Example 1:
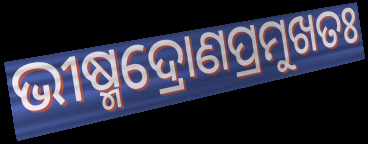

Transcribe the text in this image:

ଭୀଷ୍ମଦ୍ରୋଣପ୍ରମୁଖତଃ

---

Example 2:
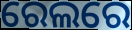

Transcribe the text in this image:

ରେଲରେ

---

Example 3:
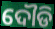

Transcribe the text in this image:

ଦୌଡି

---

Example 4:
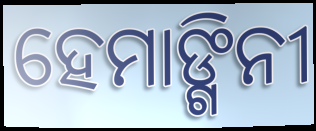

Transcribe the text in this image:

ହେମାଙ୍ଗିନୀ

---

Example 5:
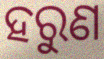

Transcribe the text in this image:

ହରୁଣ